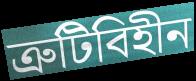
ত্রুটিবিহীন